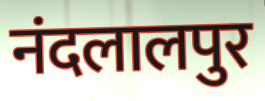
नंदलालपुर